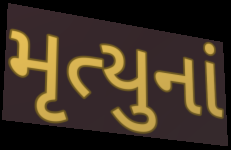
મૃત્યુનાં